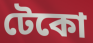
টেকো